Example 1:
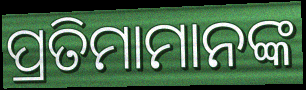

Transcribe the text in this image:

ପ୍ରତିମାମାନଙ୍କ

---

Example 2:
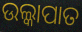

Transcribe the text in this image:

ଉଲ୍କାପାତ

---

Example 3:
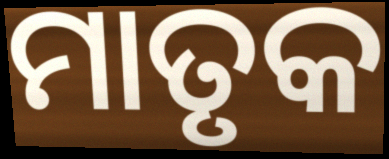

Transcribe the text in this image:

ମାତୃକ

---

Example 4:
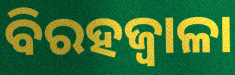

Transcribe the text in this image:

ବିରହଜ୍ୱାଳା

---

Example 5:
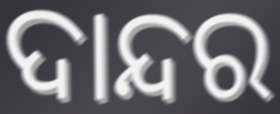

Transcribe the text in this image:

ଦାନ୍ଦର